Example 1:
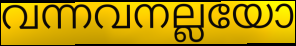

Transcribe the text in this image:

വന്നവനല്ലയോ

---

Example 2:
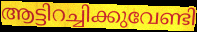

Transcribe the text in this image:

ആട്ടിറച്ചിക്കുവേണ്ടി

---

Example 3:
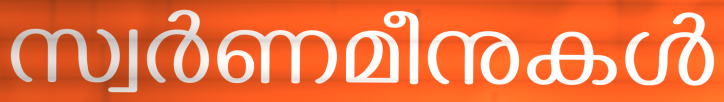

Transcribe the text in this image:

സ്വർണമീനുകൾ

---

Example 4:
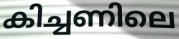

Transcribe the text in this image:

കിച്ചണിലെ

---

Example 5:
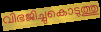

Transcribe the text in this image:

വിഭജിച്ചുകൊടുത്തു